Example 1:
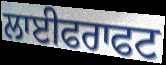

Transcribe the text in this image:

ਲਾਈਫਰਾਫਟ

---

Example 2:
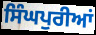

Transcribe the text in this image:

ਸਿੰਘਪੁਰੀਆਂ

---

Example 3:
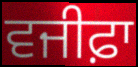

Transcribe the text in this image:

ਵਜੀਫ਼ਾ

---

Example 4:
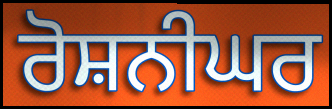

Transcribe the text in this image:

ਰੋਸ਼ਨੀਘਰ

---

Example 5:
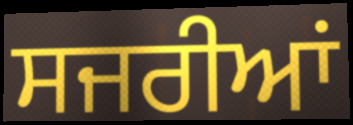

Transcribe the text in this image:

ਸਜਰੀਆਂ